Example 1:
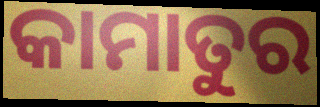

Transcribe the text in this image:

କାମାତୁର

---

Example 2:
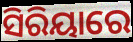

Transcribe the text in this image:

ସିରିୟାରେ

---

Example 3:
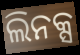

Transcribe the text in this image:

ଲିନକ୍ସ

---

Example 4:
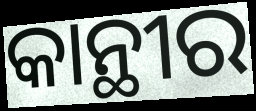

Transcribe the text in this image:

କାନ୍ଥୀର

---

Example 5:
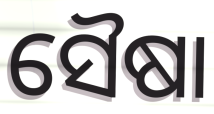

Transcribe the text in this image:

ସୈଷା